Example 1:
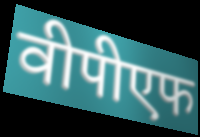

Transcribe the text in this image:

वीपीएफ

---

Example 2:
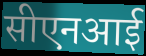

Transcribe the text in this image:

सीएनआई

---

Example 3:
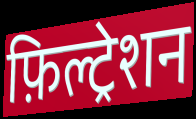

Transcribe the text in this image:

फ़िल्ट्रेशन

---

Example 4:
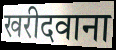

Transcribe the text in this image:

खरीदवाना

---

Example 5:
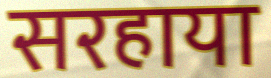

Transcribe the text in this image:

सरहाया